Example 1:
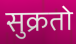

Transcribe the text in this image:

सुक्रतो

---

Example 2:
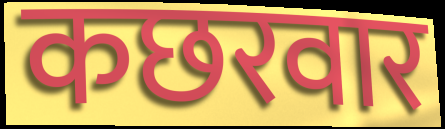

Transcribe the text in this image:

कछरवार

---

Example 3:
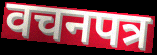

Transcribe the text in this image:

वचनपत्र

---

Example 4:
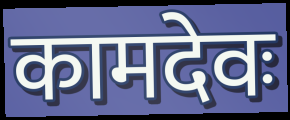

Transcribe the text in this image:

कामदेवः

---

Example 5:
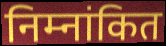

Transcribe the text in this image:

निम्नांकित